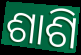
ଶାଶି